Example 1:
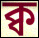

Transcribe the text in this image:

ক্ব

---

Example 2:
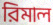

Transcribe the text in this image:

রিমাল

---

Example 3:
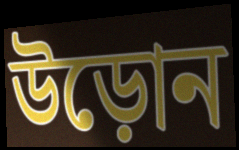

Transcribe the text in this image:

উড়োন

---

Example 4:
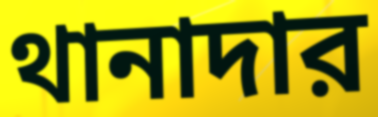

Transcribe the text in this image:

থানাদার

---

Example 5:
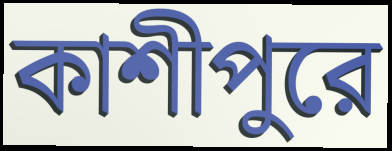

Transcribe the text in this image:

কাশীপুরে